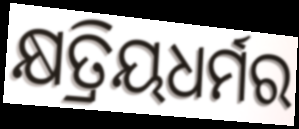
କ୍ଷତ୍ରିୟଧର୍ମର